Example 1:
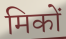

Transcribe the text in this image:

मिकों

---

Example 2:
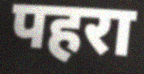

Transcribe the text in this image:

पहरा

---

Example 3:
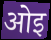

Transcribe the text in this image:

ओइ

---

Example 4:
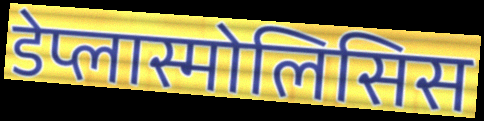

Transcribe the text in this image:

डेप्लास्मोलिसिस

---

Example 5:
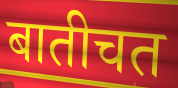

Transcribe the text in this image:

बातीचत